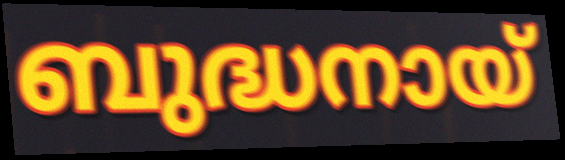
ബുദ്ധനായ്